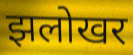
झलोखर